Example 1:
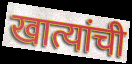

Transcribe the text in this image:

खात्यांची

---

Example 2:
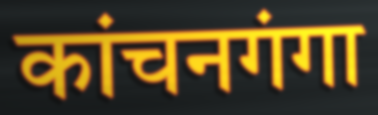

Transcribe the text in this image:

कांचनगंगा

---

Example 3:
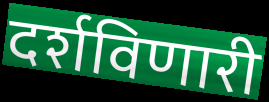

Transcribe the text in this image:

दर्शविणारी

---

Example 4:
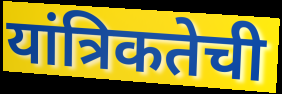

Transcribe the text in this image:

यांत्रिकतेची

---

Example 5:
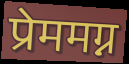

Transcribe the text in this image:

प्रेममग्न